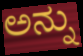
ಅನ್ನು